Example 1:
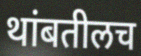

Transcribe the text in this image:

थांबतीलच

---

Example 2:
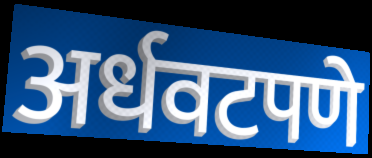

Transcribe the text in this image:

अर्धवटपणे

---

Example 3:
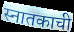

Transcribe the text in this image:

स्नातकाची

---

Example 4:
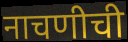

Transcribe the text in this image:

नाचणीची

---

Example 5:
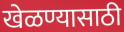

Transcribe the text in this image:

खेळण्यासाठी